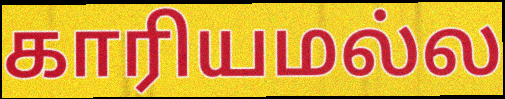
காரியமல்ல